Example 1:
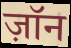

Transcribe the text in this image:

ज़ॉन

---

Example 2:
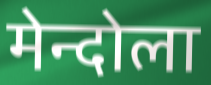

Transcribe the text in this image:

मेन्दोला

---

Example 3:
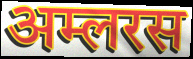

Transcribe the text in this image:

अम्लरस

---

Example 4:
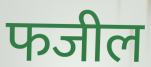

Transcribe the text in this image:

फजील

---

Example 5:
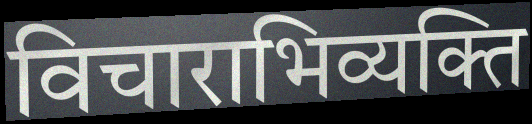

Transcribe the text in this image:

विचाराभिव्यक्ति